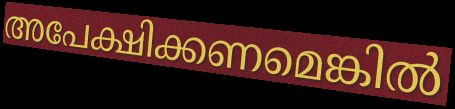
അപേക്ഷിക്കണമെങ്കിൽ